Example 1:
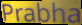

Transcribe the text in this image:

Prabha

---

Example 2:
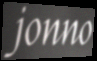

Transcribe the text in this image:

jonno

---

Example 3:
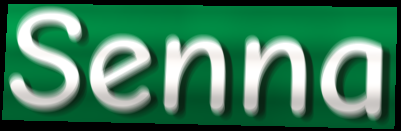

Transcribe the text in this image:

Senna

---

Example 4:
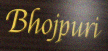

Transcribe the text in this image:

Bhojpuri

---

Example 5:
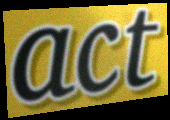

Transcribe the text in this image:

act